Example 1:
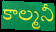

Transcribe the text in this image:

కాల్మనీ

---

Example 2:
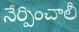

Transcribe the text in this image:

నేర్పించాలీ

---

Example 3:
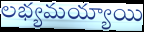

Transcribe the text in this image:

లభ్యమయ్యాయి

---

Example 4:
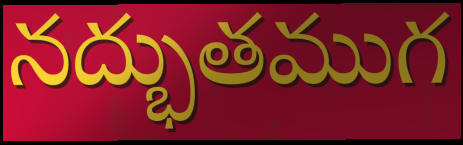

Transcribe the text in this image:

నద్భుతముగ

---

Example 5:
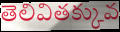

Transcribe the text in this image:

తెలివితక్కువ